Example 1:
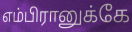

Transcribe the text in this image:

எம்பிரானுக்கே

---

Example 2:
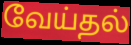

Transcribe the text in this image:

வேய்தல்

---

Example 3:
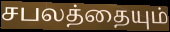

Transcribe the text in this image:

சபலத்தையும்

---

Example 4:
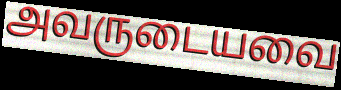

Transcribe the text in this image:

அவருடையவை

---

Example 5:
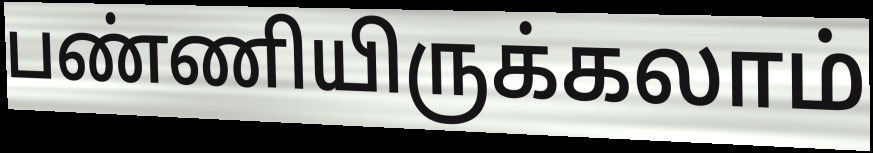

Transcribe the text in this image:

பண்ணியிருக்கலாம்